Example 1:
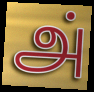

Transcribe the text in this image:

அ்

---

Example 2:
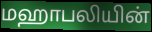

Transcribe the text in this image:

மஹாபலியின்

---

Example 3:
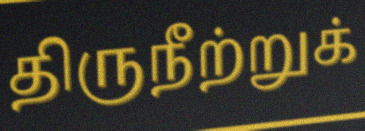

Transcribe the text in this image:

திருநீற்றுக்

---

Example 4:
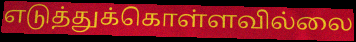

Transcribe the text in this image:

எடுத்துக்கொள்ளவில்லை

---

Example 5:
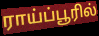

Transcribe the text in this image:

ராய்ப்பூரில்